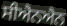
ਸੀਐਨਐਨ